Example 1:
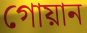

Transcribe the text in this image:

গোয়ান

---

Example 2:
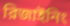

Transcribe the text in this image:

রিজাইনিং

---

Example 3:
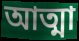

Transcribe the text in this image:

আত্মা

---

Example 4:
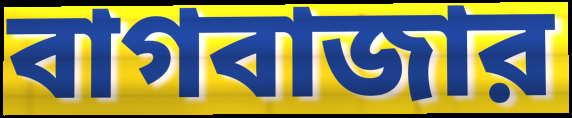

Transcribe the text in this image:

বাগবাজার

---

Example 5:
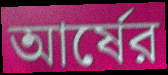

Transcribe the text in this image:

আর্ষের